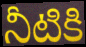
నీటికి